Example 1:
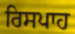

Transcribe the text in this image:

ਰਿਸਪਾਹ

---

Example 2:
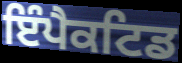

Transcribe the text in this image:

ਇੰਪੈਕਟਿਡ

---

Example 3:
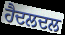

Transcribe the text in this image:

ਹੈਦਲਦਲ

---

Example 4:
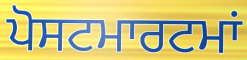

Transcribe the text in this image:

ਪੋਸਟਮਾਰਟਮਾਂ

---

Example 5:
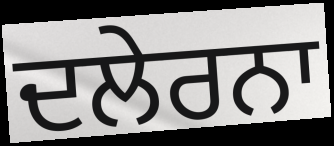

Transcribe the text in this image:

ਦਲੇਰਨਾ